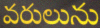
వరులును